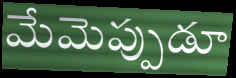
మేమెప్పుడూ